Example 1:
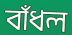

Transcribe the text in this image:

বাঁধল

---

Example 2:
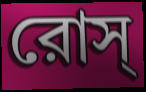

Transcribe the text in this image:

রোস্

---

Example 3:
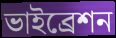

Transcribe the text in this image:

ভাইব্রেশন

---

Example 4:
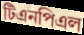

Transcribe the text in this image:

টিএনপিএল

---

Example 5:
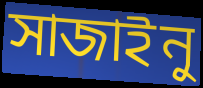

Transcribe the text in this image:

সাজাইনু